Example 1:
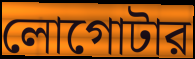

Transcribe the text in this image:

লোগোটার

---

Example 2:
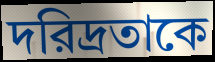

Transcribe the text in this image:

দরিদ্রতাকে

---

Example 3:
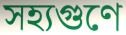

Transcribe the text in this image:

সহ্যগুণে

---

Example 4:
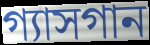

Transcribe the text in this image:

গ্যাসগান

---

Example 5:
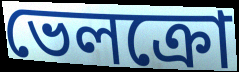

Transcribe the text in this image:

ভেলক্রো